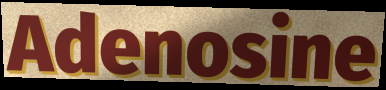
Adenosine